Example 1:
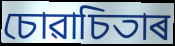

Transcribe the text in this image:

চোৱাচিতাৰ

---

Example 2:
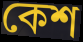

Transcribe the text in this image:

কেশ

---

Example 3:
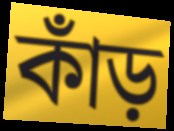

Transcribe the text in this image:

কাঁড়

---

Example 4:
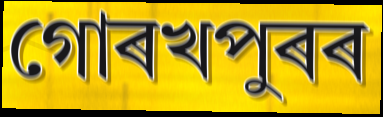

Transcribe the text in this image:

গোৰখপুৰৰ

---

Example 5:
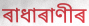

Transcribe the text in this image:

ৰাধাৰাণীৰ